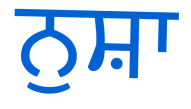
ਨੁਸ਼ਾ